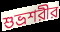
শুভ্রশরীর